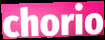
chorio